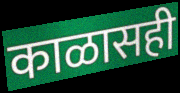
काळासही